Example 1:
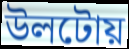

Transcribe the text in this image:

উলটোয়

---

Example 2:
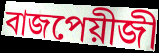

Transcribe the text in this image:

বাজপেয়ীজী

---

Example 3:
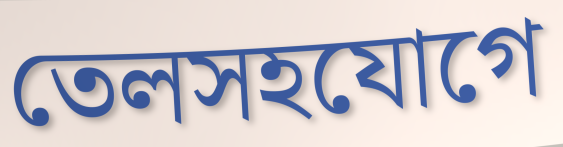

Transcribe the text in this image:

তেলসহযোগে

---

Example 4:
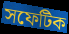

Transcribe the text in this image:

সফেটিক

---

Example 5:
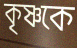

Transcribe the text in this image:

কৃষ্ণকে